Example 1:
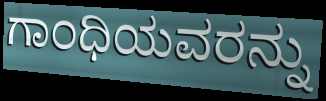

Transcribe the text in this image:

ಗಾಂಧಿಯವರನ್ನು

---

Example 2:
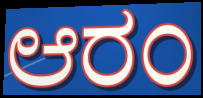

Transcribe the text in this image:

ಆರಂ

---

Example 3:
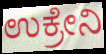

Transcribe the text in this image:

ಉಕ್ರೇನಿ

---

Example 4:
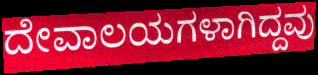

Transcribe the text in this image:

ದೇವಾಲಯಗಳಾಗಿದ್ದವು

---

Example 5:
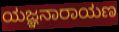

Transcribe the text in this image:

ಯಜ್ಞನಾರಾಯಣ